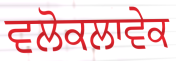
ਵਲੋਕਲਾਵੇਕ